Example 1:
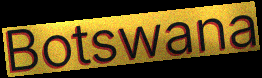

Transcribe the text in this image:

Botswana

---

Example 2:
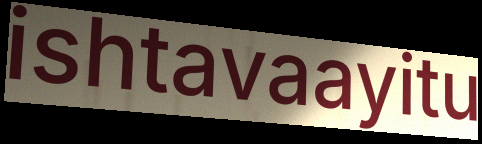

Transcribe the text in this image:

ishtavaayitu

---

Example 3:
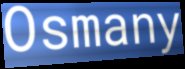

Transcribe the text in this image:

Osmany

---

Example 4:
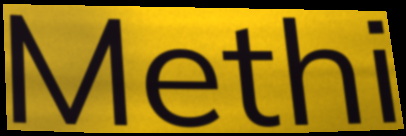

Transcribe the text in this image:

Methi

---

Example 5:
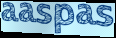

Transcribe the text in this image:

aaspas